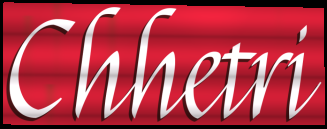
Chhetri